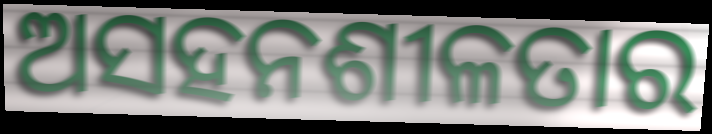
ଅସହନଶୀଳତାର